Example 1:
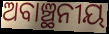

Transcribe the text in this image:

ଅବାଞ୍ଛନୀୟ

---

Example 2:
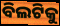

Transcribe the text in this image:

ବିଲଟିକୁ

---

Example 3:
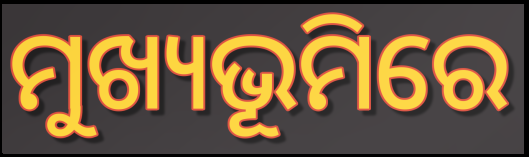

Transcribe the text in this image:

ମୁଖ୍ୟଭୂମିରେ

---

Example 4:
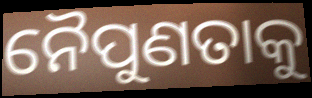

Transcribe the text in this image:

ନୈପୁଣତାକୁ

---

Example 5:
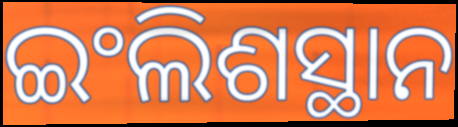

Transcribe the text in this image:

ଇଂଲିଶସ୍ଥାନ